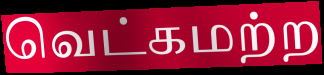
வெட்கமற்ற